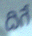
దిగే